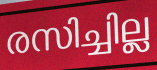
രസിച്ചില്ല